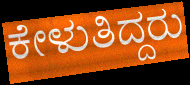
ಕೇಳುತಿದ್ದರು